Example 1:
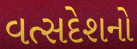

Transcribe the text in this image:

વત્સદેશનો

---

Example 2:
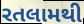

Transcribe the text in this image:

રતલામથી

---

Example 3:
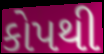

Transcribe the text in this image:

કોપથી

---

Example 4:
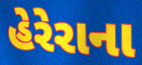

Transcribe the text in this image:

હેરેરાના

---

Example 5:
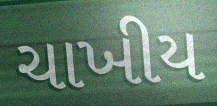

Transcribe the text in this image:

ચાખીય